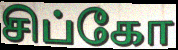
சிப்கோ